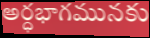
అర్ధభాగమునకు